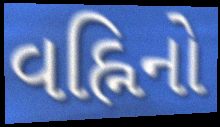
વહ્નિનો